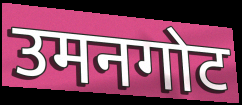
उमनगोट